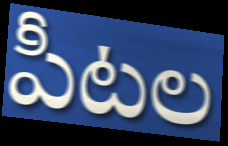
పీటల